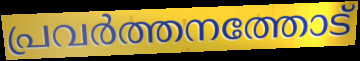
പ്രവർത്തനത്തോട്